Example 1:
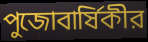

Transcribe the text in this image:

পুজোবার্ষিকীর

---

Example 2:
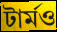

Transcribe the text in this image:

টার্মও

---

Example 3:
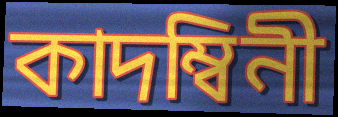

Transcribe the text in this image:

কাদম্বিনী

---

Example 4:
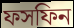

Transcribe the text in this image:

ফসফিন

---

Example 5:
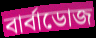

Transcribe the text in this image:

বার্বাডোজ